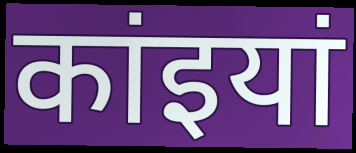
कांइयां